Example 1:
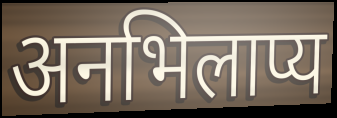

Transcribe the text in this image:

अनभिलाप्य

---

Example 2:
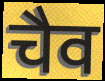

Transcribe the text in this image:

चैव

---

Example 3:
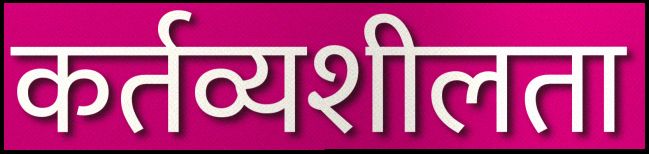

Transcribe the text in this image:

कर्तव्यशीलता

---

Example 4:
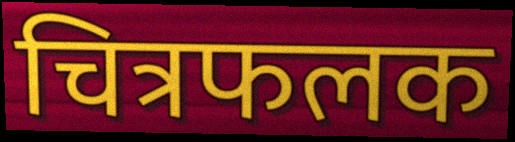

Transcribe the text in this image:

चित्रफलक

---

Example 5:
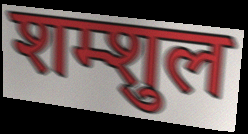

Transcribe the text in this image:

शम्शुल